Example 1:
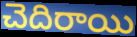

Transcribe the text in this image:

చెదిరాయి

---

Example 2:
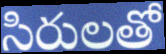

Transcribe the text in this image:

సిరులతో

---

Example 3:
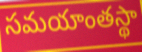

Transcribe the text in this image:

సమయాంతస్థా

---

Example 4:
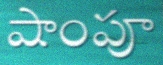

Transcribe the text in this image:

షాంపూ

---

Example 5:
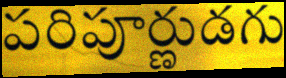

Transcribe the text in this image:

పరిపూర్ణుడగు